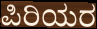
ಪಿರಿಯರ